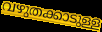
വഴുതക്കാടുള്ള